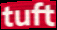
tuft